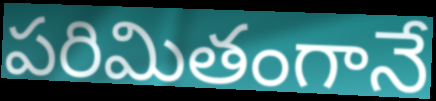
పరిమితంగానే